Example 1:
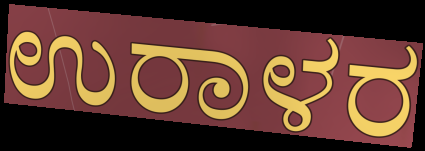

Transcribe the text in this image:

ಉರಾಳರ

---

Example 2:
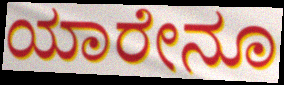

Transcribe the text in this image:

ಯಾರೇನೂ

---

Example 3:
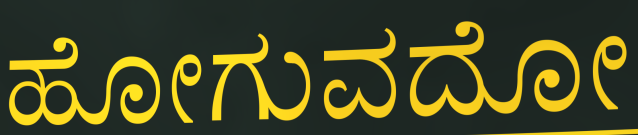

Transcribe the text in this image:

ಹೋಗುವದೋ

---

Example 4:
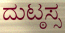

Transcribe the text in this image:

ದುಟ್ಠಸ್ಸ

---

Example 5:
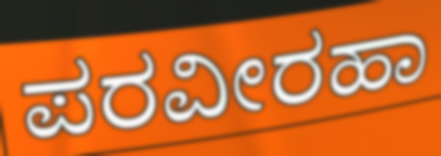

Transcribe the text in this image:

ಪರವೀರಹಾ